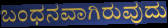
ಬಂಧನವಾಗಿರುವುದು